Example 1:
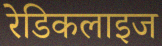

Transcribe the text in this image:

रेडिकलाइज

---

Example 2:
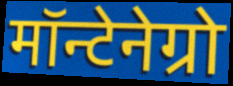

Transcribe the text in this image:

मॉन्टेनेग्रो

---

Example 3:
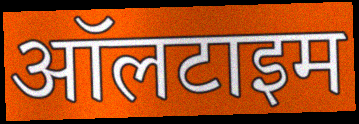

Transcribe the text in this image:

ऑलटाइम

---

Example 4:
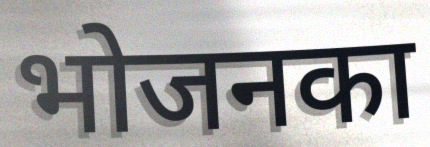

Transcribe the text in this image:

भोजनका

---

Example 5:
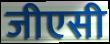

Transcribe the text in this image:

जीएसी